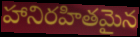
హానిరహితమైన